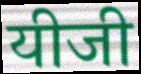
यीजी